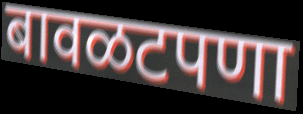
बावळटपणा